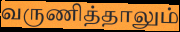
வருணித்தாலும்